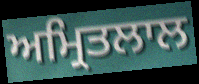
ਅਮ੍ਰਿਤਲਾਲ